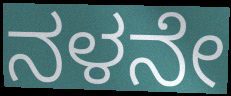
ನಳನೇ